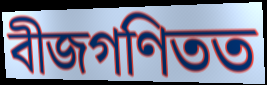
বীজগণিতত